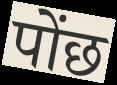
पोंछ